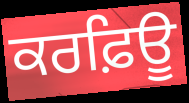
ਕਰਫ਼ਿਊ